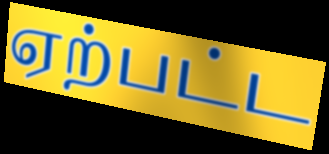
ஏற்பட்ட